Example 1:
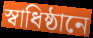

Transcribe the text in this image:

স্বাধিষ্ঠানে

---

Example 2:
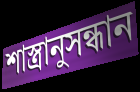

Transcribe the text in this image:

শাস্ত্রানুসন্ধান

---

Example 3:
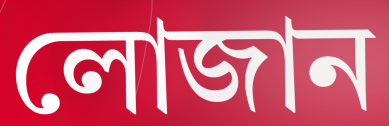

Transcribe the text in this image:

লোজান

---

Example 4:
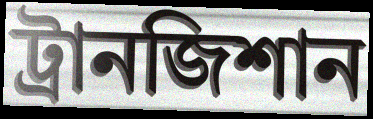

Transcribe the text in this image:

ট্রানজিশান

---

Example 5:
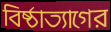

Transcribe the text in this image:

বিষ্ঠাত্যাগের